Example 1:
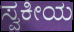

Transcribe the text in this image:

ಸ್ವಕೀಯ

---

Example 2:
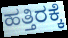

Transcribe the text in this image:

ಹತ್ತಿರಕ್ಕೆ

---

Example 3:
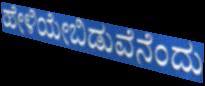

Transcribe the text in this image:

ಹೇಳಿಯೇಬಿಡುವೆನೆಂದು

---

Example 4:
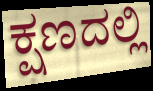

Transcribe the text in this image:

ಕ್ಷಣದಲ್ಲಿ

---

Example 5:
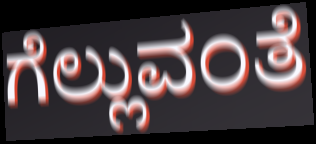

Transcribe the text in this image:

ಗೆಲ್ಲುವಂತೆ